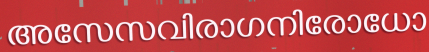
അസേസവിരാഗനിരോധോ